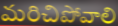
మరిచిపోవాలి